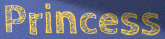
Princess